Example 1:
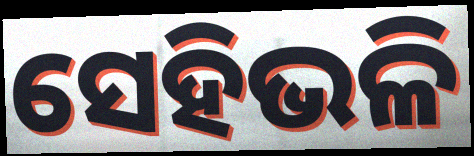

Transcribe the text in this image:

ସେହିଭଳି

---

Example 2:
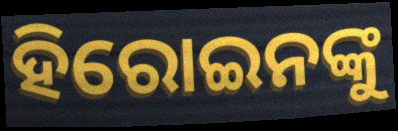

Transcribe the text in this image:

ହିରୋଇନଙ୍କୁ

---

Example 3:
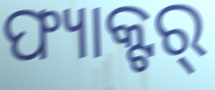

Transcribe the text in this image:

ଫ୍ୟାକ୍ଟର୍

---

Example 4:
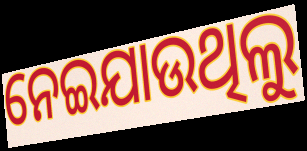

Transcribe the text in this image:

ନେଇଯାଉଥିଲୁ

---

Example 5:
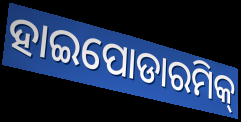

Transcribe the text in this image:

ହାଇପୋଡାରମିକ୍